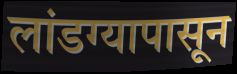
लांडग्यापासून